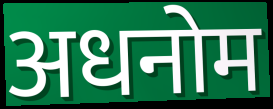
अधनोम